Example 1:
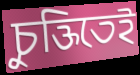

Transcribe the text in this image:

চুক্তিতেই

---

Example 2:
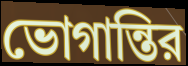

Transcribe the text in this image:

ভোগান্তির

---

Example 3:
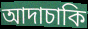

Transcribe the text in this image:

আদাচাকি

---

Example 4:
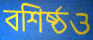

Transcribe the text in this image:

বশিষ্ঠও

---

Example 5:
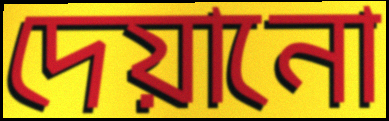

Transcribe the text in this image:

দেয়ানো